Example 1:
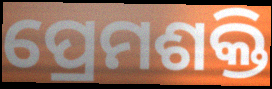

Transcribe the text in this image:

ପ୍ରେମଶକ୍ତି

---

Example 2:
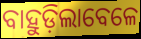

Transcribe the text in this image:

ବାହୁଡ଼ିଲାବେଳେ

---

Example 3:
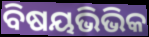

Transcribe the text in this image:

ବିଷୟଭିଭିକ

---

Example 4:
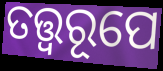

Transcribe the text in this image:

ତତ୍ତ୍ୱରୂପେ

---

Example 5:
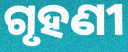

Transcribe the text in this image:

ଗୃହଣୀ